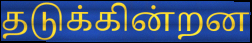
தடுக்கின்றன